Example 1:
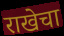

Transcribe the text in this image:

राखेचा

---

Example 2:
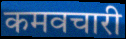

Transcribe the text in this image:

कमवचारी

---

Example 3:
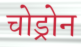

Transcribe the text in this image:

चोड्रोन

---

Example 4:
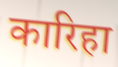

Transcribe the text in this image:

कारिहा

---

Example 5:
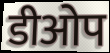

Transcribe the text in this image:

डीओप